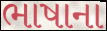
ભાષાના